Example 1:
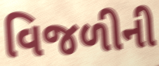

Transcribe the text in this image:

વિજળીની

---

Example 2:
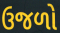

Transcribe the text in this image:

ઉજળો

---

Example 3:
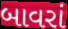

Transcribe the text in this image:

બાવરાં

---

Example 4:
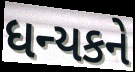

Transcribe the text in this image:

ધન્યકને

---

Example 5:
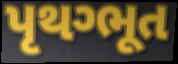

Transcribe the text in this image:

પૃથગ્ભૂત